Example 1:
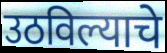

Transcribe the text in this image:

उठविल्याचे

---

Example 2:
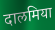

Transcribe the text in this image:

दालमिया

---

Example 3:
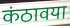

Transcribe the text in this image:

कंठावया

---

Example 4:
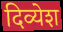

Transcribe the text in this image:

दिव्येश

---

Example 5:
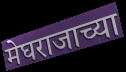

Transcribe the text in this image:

मेघराजाच्या